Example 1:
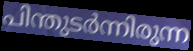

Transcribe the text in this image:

പിന്തുടർന്നിരുന്ന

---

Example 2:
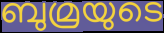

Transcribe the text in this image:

ബുമ്രയുടെ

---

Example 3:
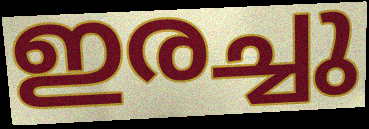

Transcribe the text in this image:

ഇരച്ചു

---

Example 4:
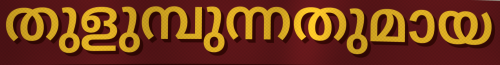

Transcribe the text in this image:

തുളുമ്പുന്നതുമായ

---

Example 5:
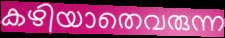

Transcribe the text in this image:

കഴിയാതെവരുന്ന